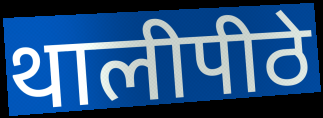
थालीपीठे